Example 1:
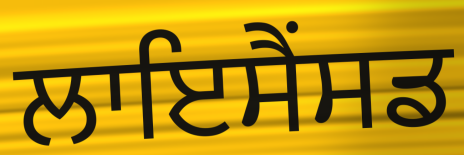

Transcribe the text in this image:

ਲਾਇਸੈਂਸਡ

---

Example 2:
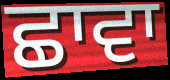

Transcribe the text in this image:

ਛਾਵਾ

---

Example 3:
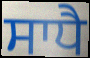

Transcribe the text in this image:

ਸਾਧੈ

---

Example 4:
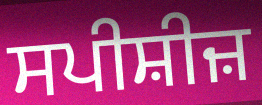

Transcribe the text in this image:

ਸਪੀਸ਼ੀਜ਼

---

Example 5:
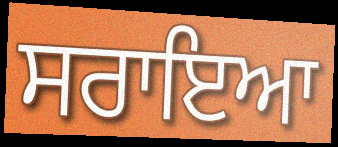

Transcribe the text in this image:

ਸਰਾਇਆ